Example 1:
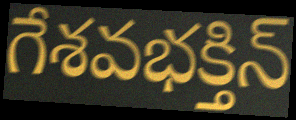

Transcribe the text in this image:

గేశవభక్తిన్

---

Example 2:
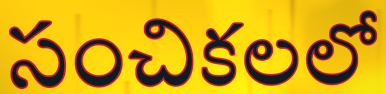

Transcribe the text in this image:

సంచికలలో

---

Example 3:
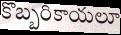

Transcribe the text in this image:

కొబ్బరికాయలూ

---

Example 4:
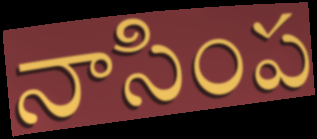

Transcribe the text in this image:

నాసింప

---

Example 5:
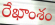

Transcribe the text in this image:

రేఖాంశం